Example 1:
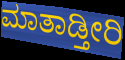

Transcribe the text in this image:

ಮಾತಾಡ್ತೀರಿ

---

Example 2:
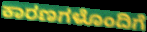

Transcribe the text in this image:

ಕಾರಣಗಳೊಂದಿಗೆ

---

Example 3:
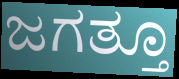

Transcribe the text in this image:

ಜಗತ್ತೂ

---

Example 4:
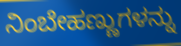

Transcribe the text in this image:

ನಿಂಬೇಹಣ್ಣುಗಳನ್ನು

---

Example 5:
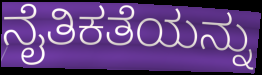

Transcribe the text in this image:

ನೈತಿಕತೆಯನ್ನು